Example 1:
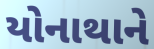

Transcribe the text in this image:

યોનાથાને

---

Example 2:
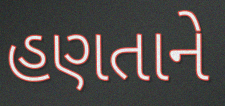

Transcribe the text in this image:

હણતાને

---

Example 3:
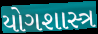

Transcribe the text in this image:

યોગશાસ્‍ત્ર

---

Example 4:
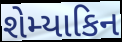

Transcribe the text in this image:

શેમ્યાકિન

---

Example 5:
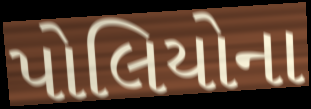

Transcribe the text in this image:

પોલિયોના